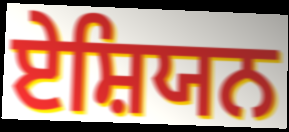
ਏਸ਼ਿਯਨ